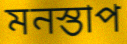
মনস্তাপ